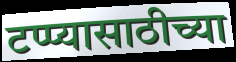
टप्प्यासाठीच्या